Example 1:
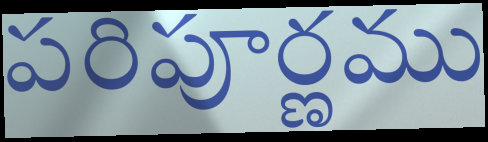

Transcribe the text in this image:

పరిపూర్ణము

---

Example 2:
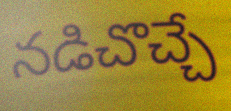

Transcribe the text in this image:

నడిచొచ్చే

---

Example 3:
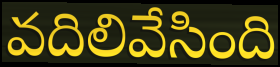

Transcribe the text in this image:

వదిలివేసింది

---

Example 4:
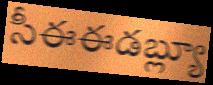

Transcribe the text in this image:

సీఈఈడబ్ల్యూ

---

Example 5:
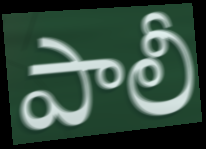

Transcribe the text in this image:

పాలీ